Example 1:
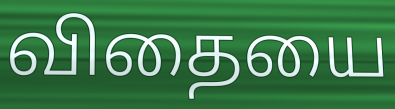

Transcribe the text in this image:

விதையை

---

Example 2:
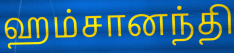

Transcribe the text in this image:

ஹம்சானந்தி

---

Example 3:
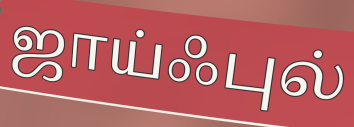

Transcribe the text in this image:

ஜாய்ஃபுல்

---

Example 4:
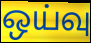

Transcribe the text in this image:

ஒய்வு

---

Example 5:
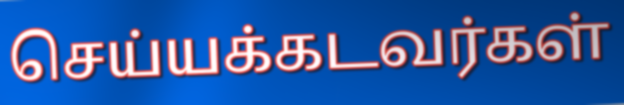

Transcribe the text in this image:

செய்யக்கடவர்கள்